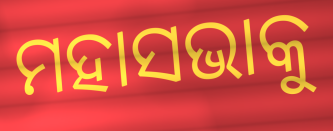
ମହାସଭାକୁ